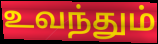
உவந்தும்